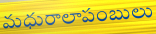
మధురాలాపంబులు